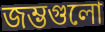
জম্ভগুলো